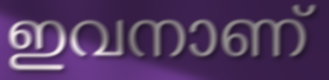
ഇവനാണ്